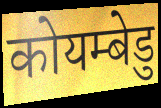
कोयम्बेडु